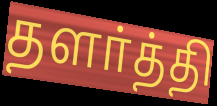
தளர்த்தி